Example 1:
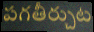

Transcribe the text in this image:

పగతీర్చుట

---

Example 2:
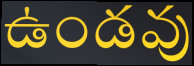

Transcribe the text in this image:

ఉండవు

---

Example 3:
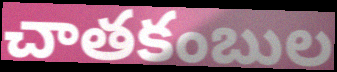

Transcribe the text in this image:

చాతకంబుల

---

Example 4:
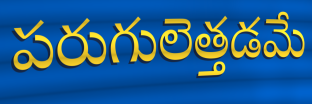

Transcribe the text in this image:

పరుగులెత్తడమే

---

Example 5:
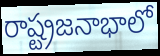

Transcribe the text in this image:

రాష్ట్రజనాభాలో